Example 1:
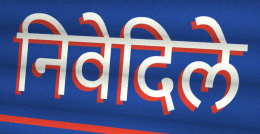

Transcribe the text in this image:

निवेदिले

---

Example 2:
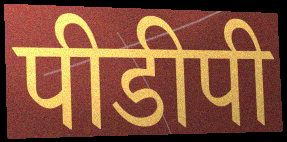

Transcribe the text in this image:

पीडीपी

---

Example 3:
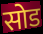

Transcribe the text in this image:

सोड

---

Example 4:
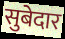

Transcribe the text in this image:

सुबेदार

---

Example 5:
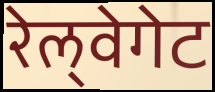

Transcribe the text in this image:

रेल्वेगेट